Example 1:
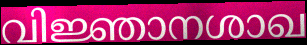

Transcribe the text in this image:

വിജ്ഞാനശാഖ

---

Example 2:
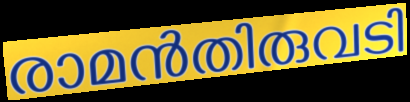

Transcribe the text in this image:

രാമൻതിരുവടി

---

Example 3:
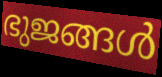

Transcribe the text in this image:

ഭുജങ്ങൾ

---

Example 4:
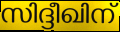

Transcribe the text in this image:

സിദ്ദീഖിന്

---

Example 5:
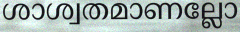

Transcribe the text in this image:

ശാശ്വതമാണല്ലോ